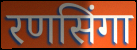
रणसिंगा